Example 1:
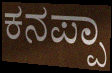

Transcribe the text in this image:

ಕನಪ್ಪಾ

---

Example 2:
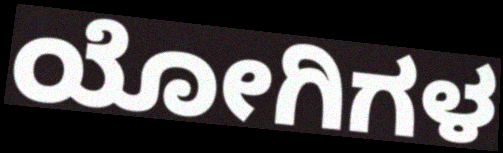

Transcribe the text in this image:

ಯೋಗಿಗಳ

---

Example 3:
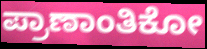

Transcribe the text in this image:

ಪ್ರಾಣಾಂತಿಕೋ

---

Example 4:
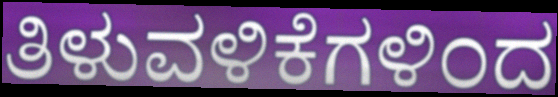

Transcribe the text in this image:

ತಿಳುವಳಿಕೆಗಳಿಂದ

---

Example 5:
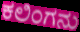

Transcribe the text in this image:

ಕಲಿಂಗನು